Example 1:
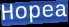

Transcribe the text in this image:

Hopea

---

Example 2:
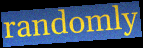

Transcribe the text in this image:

randomly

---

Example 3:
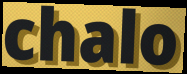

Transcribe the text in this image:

chalo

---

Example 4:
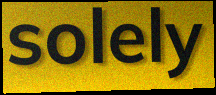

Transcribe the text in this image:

solely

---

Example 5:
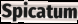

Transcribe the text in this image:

Spicatum